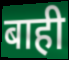
बाही